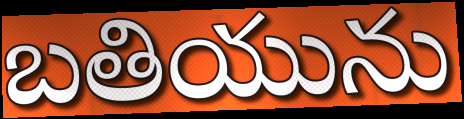
బతియును